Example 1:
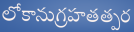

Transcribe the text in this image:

లోకానుగ్రహతత్పర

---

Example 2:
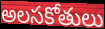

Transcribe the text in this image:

అలసకోతులు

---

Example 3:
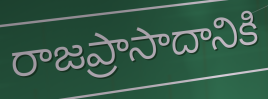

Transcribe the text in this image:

రాజప్రాసాదానికి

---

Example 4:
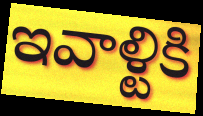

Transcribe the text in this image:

ఇవాళ్టికి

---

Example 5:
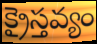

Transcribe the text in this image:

క్రైస్తవ్యం